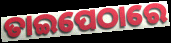
ତାଇପେଠାରେ